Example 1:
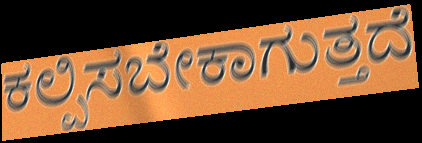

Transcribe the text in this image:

ಕಲ್ಪಿಸಬೇಕಾಗುತ್ತದೆ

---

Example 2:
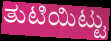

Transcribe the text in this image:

ತುಟಿಯಿಟ್ಟು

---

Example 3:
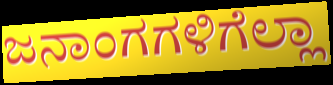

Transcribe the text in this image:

ಜನಾಂಗಗಳಿಗೆಲ್ಲಾ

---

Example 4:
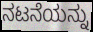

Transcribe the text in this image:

ನಟನೆಯನ್ನು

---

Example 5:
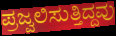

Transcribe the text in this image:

ಪ್ರಜ್ವಲಿಸುತ್ತಿದ್ದವು